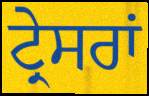
ਟ੍ਰੇਸਰਾਂ